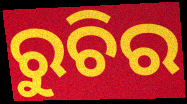
ରୁଚିର